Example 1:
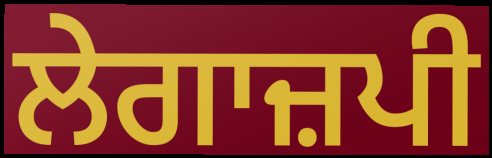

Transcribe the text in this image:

ਲੇਗਾਜ਼ਪੀ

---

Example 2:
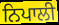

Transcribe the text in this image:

ਨਿਪਾਲੀ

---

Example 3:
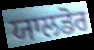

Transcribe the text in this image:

ਯਾਲਡੋਰ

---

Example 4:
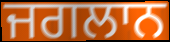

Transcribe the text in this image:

ਜਗਲਾਨ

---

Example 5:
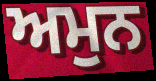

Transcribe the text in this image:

ਅਮੁਨ